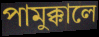
পামুক্কালে